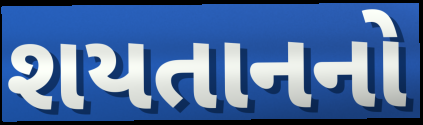
શયતાનનો